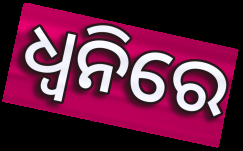
ଧ୍ଵନିରେ